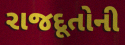
રાજદૂતોની